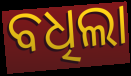
ବଧିଲା